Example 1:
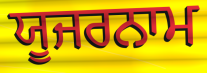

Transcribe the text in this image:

ਯੂਜਰਨਾਮ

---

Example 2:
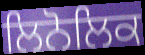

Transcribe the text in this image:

ਲਿਨੋਲਿਕ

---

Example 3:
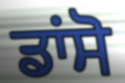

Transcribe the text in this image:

ਡਾਂਸੋ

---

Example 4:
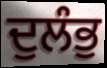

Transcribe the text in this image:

ਦੁਲੰਭੁ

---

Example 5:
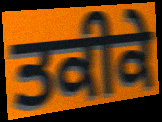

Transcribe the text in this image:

ਤਕੀਕੇ